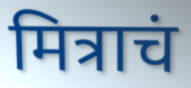
मित्राचं